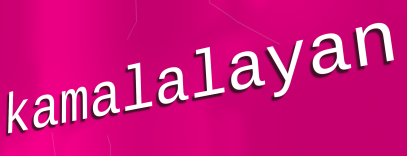
kamalalayan